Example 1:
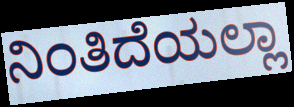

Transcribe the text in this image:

ನಿಂತಿದೆಯಲ್ಲಾ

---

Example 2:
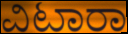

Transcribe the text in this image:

ವಿಟಾರಾ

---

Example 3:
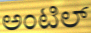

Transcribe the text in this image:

ಅಂಟಿಲ್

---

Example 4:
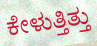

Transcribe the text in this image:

ಕೇಳುತ್ತಿತ್ತು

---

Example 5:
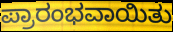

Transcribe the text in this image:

ಪ್ರಾರಂಭವಾಯಿತು